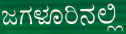
ಜಗಳೂರಿನಲ್ಲಿ